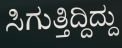
ಸಿಗುತ್ತಿದ್ದಿದ್ದು